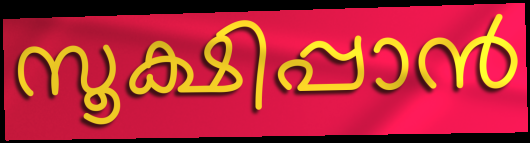
സൂക്ഷിപ്പാൻ